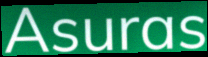
Asuras